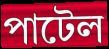
পাটেল